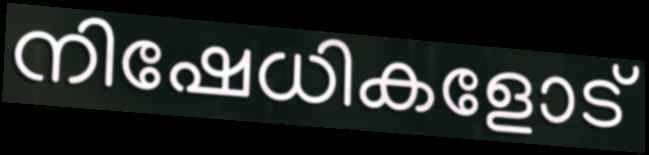
നിഷേധികളോട്